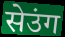
सेउंग